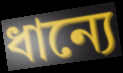
ধান্যে